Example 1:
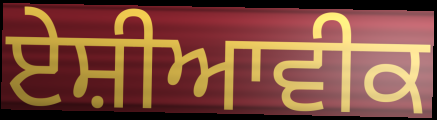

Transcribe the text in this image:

ਏਸ਼ੀਆਵੀਕ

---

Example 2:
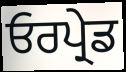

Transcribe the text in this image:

ਓਰਪ੍ਰੇਡ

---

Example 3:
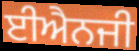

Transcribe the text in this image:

ਈਐਨਜੀ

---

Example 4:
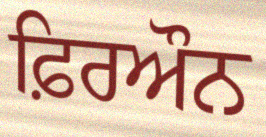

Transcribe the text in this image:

ਫ਼ਿਰਔਨ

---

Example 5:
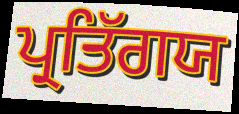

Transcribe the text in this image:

ਪ੍ਰਤਿੱਗਯ